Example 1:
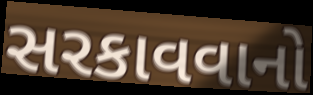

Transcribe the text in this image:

સરકાવવાનો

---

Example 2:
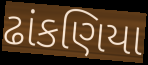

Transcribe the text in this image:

ઢાંકણિયા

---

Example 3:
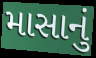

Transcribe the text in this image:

માસાનું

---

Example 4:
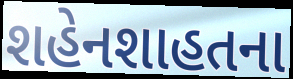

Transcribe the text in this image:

શહેનશાહતના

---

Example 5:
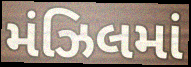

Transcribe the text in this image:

મંઝિલમાં